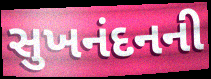
સુખનંદનની